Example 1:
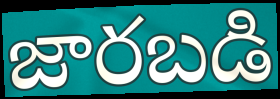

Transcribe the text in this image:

జారబడి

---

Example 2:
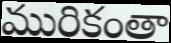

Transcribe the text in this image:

మురికంతా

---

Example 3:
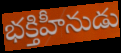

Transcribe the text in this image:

భక్తిహీనుడు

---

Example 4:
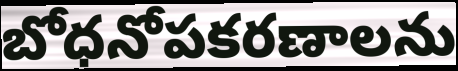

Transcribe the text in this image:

బోధనోపకరణాలను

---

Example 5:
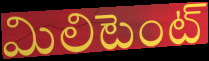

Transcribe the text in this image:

మిలిటెంట్